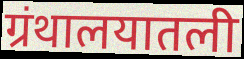
ग्रंथालयातली